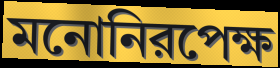
মনোনিরপেক্ষ